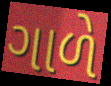
ગાળે